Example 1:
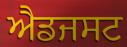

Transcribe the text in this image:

ਐਡਜਸਟ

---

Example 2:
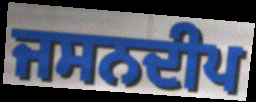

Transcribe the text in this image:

ਜਸਨਦੀਪ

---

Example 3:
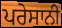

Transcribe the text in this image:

ਪਰੇਸਾਨੀ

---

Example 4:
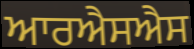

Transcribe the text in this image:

ਆਰਐਸਐਸ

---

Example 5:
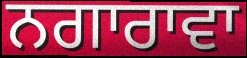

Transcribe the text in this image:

ਨਗਾਰਾਵਾ